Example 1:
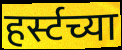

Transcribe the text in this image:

हर्स्टच्या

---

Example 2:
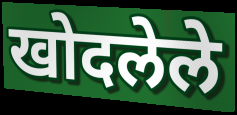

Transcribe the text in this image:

खोदलेले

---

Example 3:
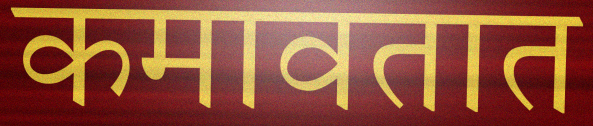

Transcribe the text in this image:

कमावतात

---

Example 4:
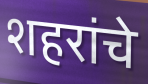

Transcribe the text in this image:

शहरांचे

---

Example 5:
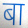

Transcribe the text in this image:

बा